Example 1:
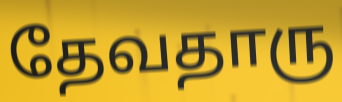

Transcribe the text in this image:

தேவதாரு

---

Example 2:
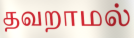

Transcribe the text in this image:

தவறாமல்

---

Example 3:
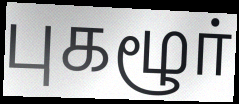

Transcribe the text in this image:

புகழூர்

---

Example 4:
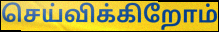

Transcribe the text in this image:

செய்விக்கிறோம்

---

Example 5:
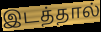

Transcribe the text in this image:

இடத்தால்